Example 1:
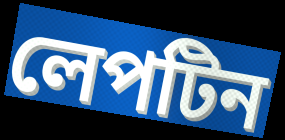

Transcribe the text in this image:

লেপটিন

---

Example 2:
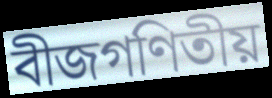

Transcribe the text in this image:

বীজগণিতীয়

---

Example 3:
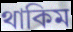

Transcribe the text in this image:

থাকিম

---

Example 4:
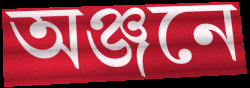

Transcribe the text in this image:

অঞ্জনে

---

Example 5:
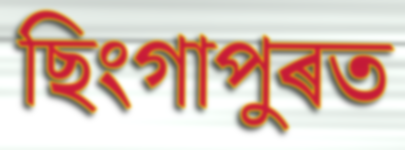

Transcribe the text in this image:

ছিংগাপুৰত